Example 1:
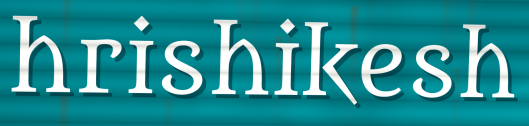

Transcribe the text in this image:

hrishikesh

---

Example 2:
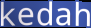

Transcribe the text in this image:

kedah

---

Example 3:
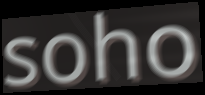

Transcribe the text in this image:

soho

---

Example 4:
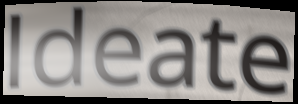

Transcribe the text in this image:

Ideate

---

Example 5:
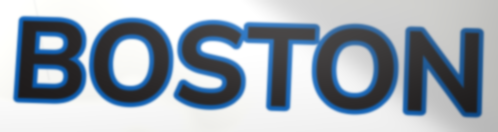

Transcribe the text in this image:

BOSTON